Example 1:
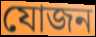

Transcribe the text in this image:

যোজন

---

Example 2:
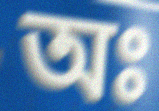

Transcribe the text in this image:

অঃ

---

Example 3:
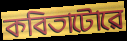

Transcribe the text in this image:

কবিতাটোৱে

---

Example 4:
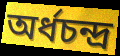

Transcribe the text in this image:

অৰ্ধচন্দ্ৰ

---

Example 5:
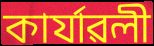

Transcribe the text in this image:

কাৰ্যাৱলী